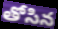
తోసిన